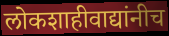
लोकशाहीवाद्यांनीच